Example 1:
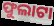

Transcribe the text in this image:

ଫୁଲାଟା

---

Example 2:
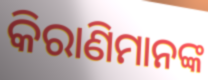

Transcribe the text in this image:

କିରାଣିମାନଙ୍କ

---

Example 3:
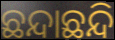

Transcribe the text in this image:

ଛନ୍ଦାଛନ୍ଦି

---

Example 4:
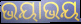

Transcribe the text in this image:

ଭୟାଭୟ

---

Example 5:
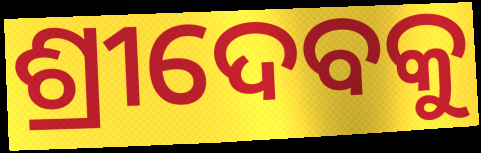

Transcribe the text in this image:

ଶ୍ରୀଦେବକୁ